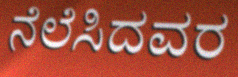
ನೆಲೆಸಿದವರ